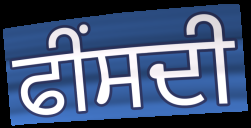
ਫੀਂਸਦੀ